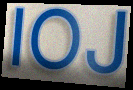
IOJ